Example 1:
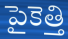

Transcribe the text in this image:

పైకెత్తి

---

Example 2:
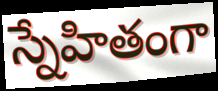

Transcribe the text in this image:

స్నేహితంగా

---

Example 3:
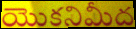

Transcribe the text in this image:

యొకనిమీద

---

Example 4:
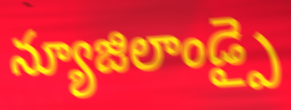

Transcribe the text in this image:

న్యూజిలాండ్పై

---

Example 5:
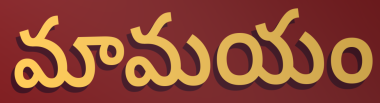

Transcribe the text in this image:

మామయం